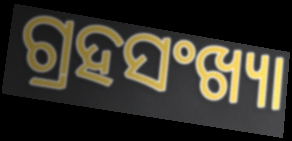
ଗ୍ରହସଂଖ୍ୟା